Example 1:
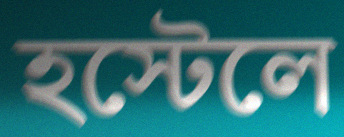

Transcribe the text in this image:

হস্টেলে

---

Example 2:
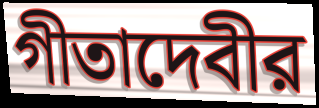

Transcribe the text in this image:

গীতাদেবীর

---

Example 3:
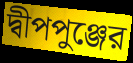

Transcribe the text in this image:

দ্বীপপুঞ্জের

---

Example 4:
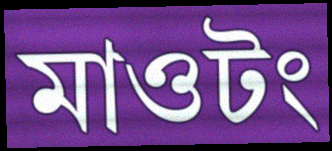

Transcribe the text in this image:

মাওটং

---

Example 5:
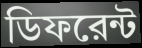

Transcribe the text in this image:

ডিফরেন্ট